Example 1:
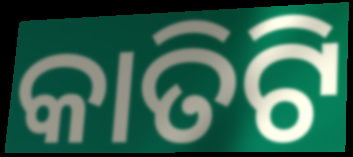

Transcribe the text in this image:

କାତିଟି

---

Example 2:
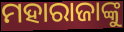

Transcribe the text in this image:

ମହାରାଜାଙ୍କୁ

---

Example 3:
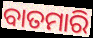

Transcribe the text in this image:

ବାତମାରି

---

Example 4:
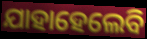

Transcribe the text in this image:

ଯାହାହେଲେବି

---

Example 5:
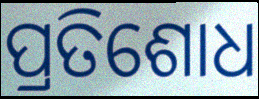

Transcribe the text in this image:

ପ୍ରତିଶୋଧ